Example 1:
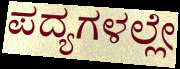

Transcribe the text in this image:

ಪದ್ಯಗಳಲ್ಲೇ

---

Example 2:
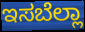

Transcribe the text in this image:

ಇಸಬೆಲ್ಲಾ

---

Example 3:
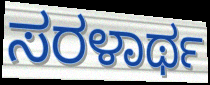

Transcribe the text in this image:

ಸರಳಾರ್ಥ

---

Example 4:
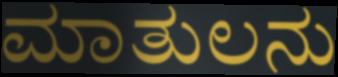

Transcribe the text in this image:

ಮಾತುಲನು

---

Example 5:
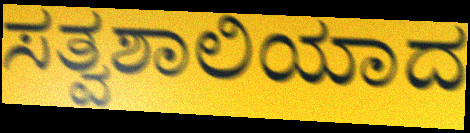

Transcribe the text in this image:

ಸತ್ವಶಾಲಿಯಾದ